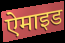
ऐमाइड